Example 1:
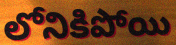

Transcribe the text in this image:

లోనికిపోయి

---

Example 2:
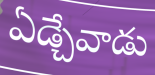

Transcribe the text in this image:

ఏడ్చేవాడు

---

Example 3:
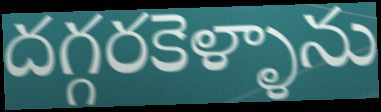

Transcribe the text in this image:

దగ్గరకెళ్ళాను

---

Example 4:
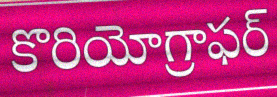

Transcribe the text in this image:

కొరియోగ్రాఫర్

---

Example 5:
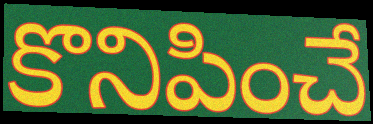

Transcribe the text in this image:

కొనిపించే